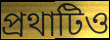
প্রথাটিও